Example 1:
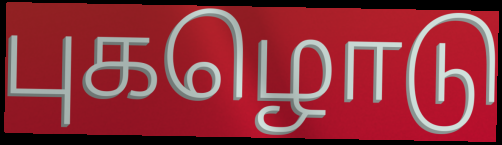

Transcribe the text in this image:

புகழொடு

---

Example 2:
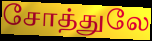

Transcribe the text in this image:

சோத்துலே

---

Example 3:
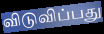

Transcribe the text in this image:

விடுவிப்பது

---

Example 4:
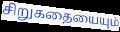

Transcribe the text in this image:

சிறுகதையையும்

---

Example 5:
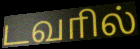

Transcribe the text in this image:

டவரில்